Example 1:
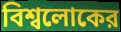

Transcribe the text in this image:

বিশ্বলোকের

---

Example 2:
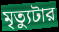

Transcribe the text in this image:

মৃত্যুটার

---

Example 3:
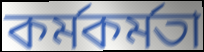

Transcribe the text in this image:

কর্মকর্মতা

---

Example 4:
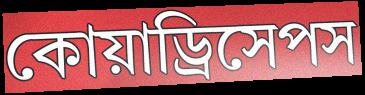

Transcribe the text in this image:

কোয়াড্রিসেপস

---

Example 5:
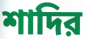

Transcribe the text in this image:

শাদির